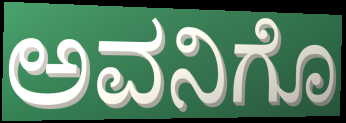
ಅವನಿಗೊ